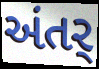
અંતર્